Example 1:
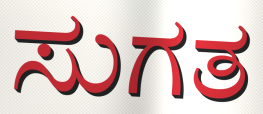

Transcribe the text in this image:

ಸುಗತ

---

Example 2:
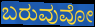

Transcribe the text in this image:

ಬರುವುವೋ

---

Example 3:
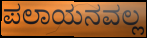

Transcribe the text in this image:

ಪಲಾಯನವಲ್ಲ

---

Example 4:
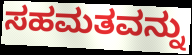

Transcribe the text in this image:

ಸಹಮತವನ್ನು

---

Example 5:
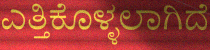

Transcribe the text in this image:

ಎತ್ತಿಕೊಳ್ಳಲಾಗಿದೆ